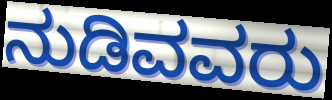
ನುಡಿವವರು